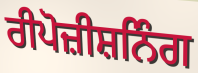
ਰੀਪੋਜ਼ੀਸ਼ਨਿੰਗ